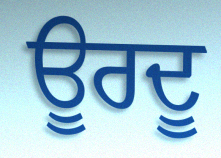
ਊਰਦੂ